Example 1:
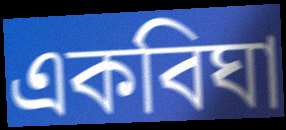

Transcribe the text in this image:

একবিঘা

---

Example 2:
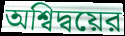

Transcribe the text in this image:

অশ্বিদ্বয়ের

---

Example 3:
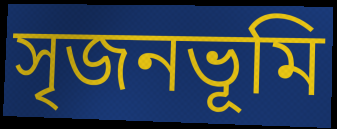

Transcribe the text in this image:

সৃজনভূমি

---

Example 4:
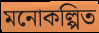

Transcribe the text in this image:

মনোকল্পিত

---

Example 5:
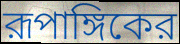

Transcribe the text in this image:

রূপাঙ্গিকের